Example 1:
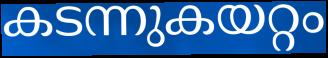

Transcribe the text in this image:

കടന്നുകയറ്റം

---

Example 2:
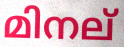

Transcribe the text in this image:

മിനല്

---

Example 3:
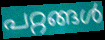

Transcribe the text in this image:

പറ്റങ്ങൾ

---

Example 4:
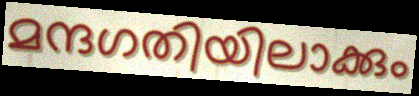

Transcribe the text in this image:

മന്ദഗതിയിലാക്കും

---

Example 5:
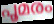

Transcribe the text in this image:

പൂമരം